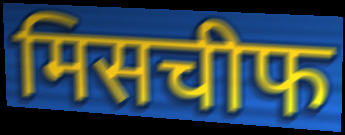
मिसचीफ